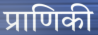
प्राणिकी